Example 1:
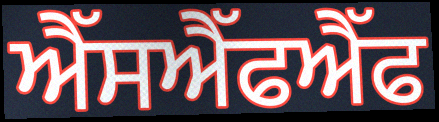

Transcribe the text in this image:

ਐੱਸਐੱਫਐੱਫ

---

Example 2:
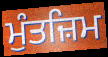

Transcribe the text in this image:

ਮੁੰਤਜ਼ਿਮ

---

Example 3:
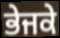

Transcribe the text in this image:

ਭੇਜਕੇ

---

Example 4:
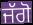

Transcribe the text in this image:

ਜੱਗੋ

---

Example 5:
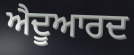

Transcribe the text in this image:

ਐਦੂਆਰਦ